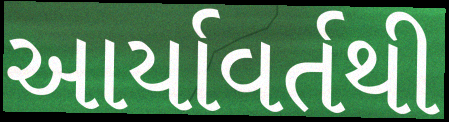
આર્યાવર્તથી